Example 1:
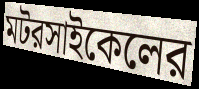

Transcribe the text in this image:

মটরসাইকেলের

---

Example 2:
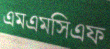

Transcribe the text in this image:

এমএমসিএফ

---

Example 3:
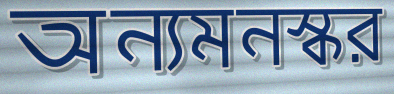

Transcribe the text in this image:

অন্যমনস্কর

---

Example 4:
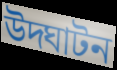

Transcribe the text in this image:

উদ্ঘাটন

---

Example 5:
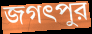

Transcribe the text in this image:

জগৎপুর